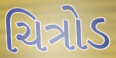
ચિત્રોડ